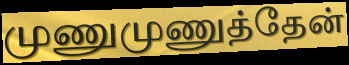
முணுமுணுத்தேன்